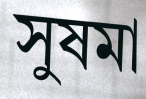
সুষমা